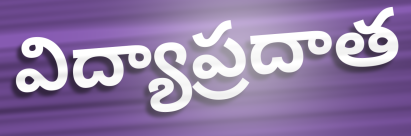
విద్యాప్రదాత